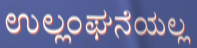
ಉಲ್ಲಂಘನೆಯಲ್ಲ